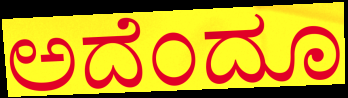
ಅದೆಂದೂ